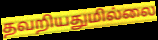
தவறியதுமில்லை